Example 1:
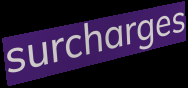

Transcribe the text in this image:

surcharges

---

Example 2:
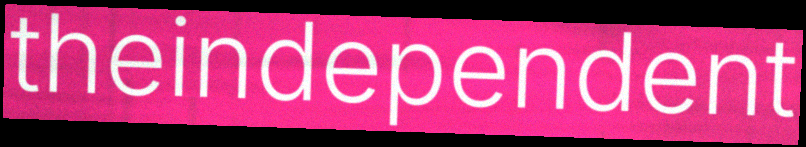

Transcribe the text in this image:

theindependent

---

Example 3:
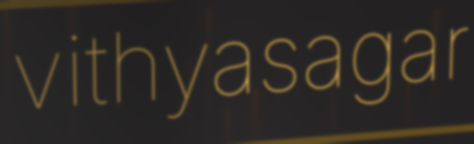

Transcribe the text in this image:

vithyasagar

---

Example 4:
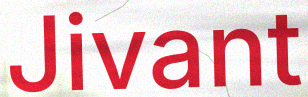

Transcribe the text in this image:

Jivant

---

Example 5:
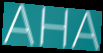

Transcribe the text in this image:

AHA